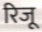
रिजू